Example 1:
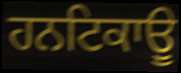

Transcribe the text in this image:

ਹਨਟਿਕਾਊ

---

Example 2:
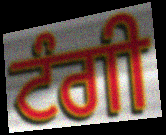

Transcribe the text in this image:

ਟੰਗੀ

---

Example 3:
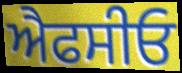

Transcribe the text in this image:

ਐਫਸੀਓ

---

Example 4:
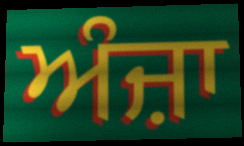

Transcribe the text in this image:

ਅੰਜ਼ਾ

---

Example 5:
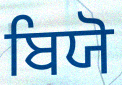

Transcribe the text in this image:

ਬਿਯੋ